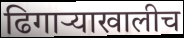
ढिगाऱ्याखालीच